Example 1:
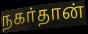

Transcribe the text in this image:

நகர்தான்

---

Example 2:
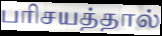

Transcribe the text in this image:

பரிசயத்தால்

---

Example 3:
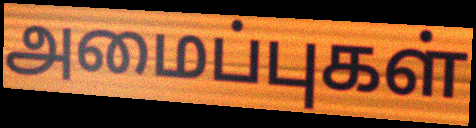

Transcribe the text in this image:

அமைப்புகள்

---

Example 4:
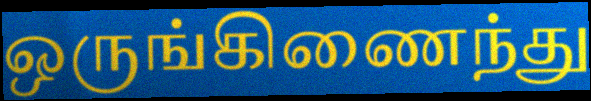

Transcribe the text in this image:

ஒருங்கிணைந்து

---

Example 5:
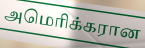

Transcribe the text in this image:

அமெரிக்கரான